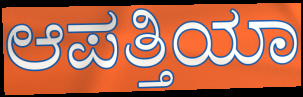
ಆಪತ್ತಿಯಾ